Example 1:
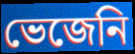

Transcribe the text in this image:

ভেজেনি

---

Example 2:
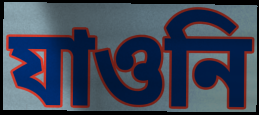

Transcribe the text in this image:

যাওনি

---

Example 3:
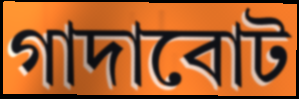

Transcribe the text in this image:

গাদাবোট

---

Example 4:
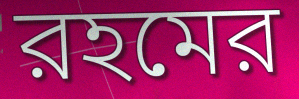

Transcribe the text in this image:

রহমের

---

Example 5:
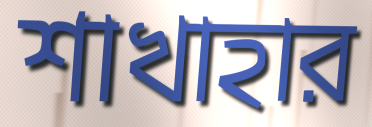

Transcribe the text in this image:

শাখাহার